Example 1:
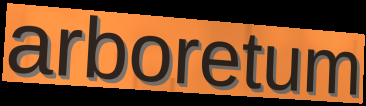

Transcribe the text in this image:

arboretum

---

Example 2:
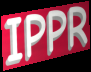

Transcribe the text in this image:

IPPR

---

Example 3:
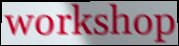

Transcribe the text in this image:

workshop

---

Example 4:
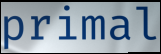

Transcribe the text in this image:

primal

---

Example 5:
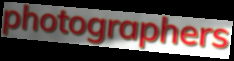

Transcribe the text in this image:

photographers